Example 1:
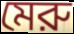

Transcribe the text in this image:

মেরু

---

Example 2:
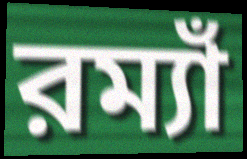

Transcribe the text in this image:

রম্যাঁ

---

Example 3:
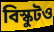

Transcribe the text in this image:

বিস্কুটও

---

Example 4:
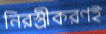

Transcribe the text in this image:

নিরস্ত্রীকরণই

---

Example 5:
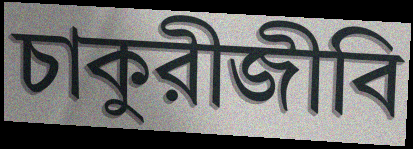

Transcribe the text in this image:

চাকুরীজীবি